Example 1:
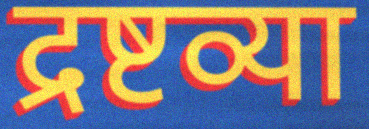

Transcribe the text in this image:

द्रष्टव्या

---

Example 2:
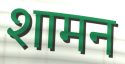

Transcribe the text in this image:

शामन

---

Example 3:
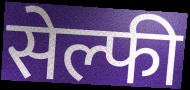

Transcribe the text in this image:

सेल्फी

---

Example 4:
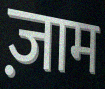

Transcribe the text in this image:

ज़ाम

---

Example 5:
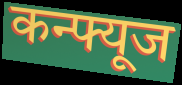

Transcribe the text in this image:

कन्फ्यूज